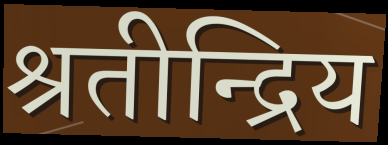
श्रतीन्द्रिय